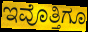
ಇವೊತ್ತಿಗೂ